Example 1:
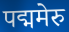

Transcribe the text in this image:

पद्ममेरु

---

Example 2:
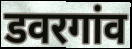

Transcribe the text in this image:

डवरगांव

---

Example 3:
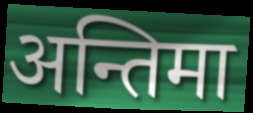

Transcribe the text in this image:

अन्तिमा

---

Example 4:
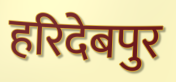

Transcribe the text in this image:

हरिदेबपुर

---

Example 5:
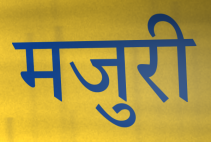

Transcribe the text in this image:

मजुरी